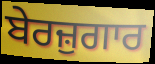
ਬੇਰਜ਼ੁਗਾਰ